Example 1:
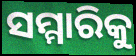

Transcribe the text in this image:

ସମ୍ମାରିକୁ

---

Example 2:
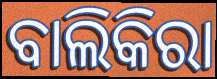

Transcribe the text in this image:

ବାଲିକିରା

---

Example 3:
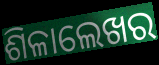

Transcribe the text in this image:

ଶିଳାଲେଖର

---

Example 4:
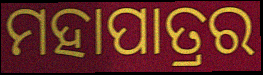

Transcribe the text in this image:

ମହାପାତ୍ରର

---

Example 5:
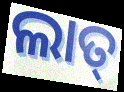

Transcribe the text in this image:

ଲାତ୍